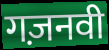
गज़नवी